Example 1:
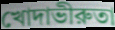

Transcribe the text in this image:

খোদাভীরুতা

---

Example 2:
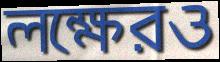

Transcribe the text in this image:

লক্ষেরও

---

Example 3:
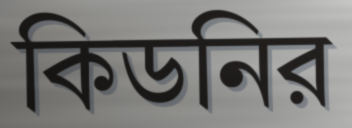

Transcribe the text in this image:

কিডনির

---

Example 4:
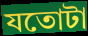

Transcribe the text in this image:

যতোটা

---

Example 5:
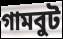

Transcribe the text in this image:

গামবুট